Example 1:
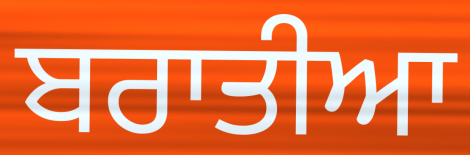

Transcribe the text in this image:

ਬਰਾਤੀਆ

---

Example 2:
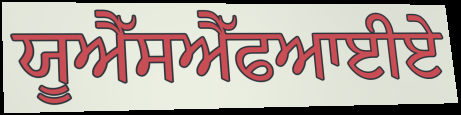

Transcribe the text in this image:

ਯੂਐੱਸਐੱਫਆਈਏ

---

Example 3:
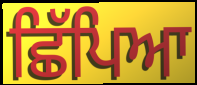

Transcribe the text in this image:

ਛਿੱਪਿਆ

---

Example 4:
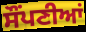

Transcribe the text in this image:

ਸੌਂਪਣੀਆਂ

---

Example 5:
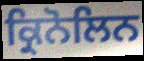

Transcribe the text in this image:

ਕ੍ਰਿਨੋਲਿਨ